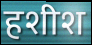
हशीश